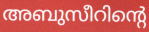
അബുസീറിന്റെ